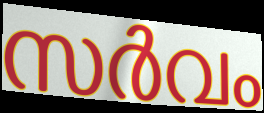
സർവം